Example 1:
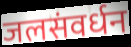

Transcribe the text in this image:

जलसंवर्धन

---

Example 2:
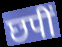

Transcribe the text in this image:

छपीं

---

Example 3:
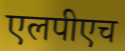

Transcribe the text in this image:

एलपीएच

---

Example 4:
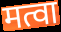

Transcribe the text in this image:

मत्वा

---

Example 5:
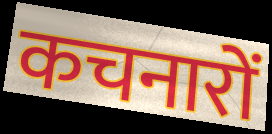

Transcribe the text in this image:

कचनारों